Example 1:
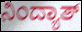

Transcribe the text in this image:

ನಿಂದ್ಯಾತ್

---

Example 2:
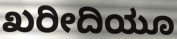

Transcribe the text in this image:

ಖರೀದಿಯೂ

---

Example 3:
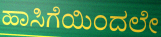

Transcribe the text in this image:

ಹಾಸಿಗೆಯಿಂದಲೇ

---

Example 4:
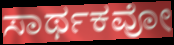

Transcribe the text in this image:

ಸಾರ್ಥಕವೋ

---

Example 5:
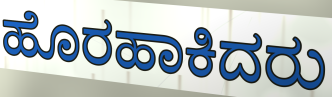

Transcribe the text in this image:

ಹೊರಹಾಕಿದರು